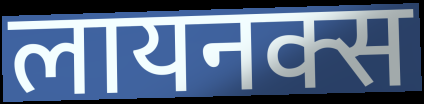
लायनक्स